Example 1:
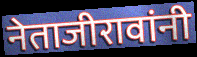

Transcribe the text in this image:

नेताजीरावांनी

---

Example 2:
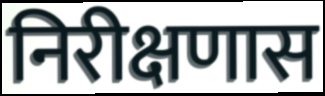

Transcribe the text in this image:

निरीक्षणास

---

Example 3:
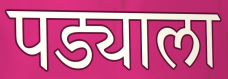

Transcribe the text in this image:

पड्याला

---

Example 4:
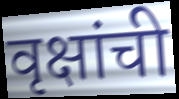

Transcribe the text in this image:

वृक्षांची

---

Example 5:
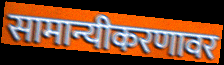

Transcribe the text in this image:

सामान्यीकरणावर